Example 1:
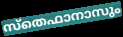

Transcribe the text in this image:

സ്തെഫാനാസും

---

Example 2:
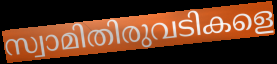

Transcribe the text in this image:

സ്വാമിതിരുവടികളെ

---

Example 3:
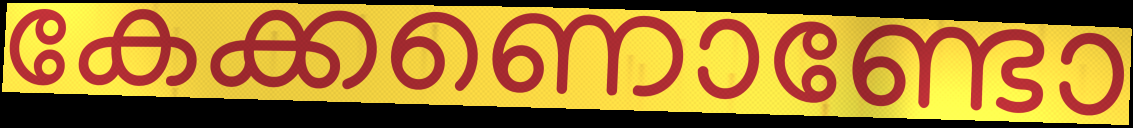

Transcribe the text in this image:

കേക്കണൊണ്ടോ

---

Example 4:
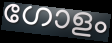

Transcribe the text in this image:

ഗോളം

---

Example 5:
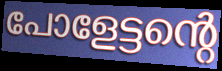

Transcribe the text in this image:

പോളേട്ടന്റെ